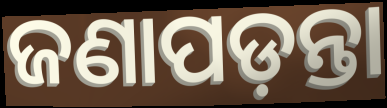
ଜଣାପଡ଼ନ୍ତା